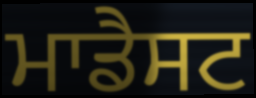
ਮਾਡੈਸਟ